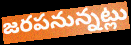
జరపనున్నట్లు